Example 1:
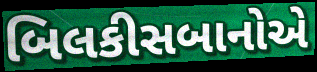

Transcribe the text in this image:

બિલકીસબાનોએ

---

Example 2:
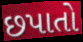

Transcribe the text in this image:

છપાતો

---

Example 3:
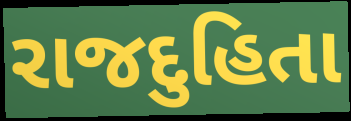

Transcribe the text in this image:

રાજદુહિતા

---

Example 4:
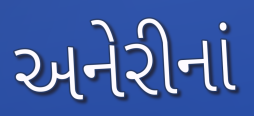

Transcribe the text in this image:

અનેરીનાં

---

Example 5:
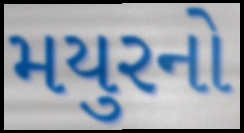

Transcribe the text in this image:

મયુરનો